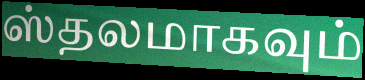
ஸ்தலமாகவும்